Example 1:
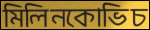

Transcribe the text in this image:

মিলিনকোভিচ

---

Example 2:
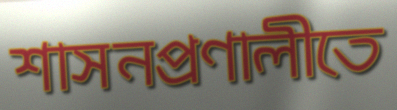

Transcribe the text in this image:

শাসনপ্রণালীতে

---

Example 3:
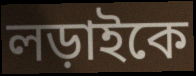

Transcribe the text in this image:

লড়াইকে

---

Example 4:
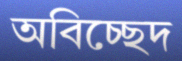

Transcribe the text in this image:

অবিচ্ছেদ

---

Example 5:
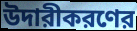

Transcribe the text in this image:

উদারীকরণের